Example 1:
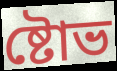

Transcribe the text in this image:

ষ্টোভ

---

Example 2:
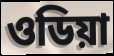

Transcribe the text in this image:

ওডিয়া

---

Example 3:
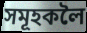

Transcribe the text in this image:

সমূহকলৈ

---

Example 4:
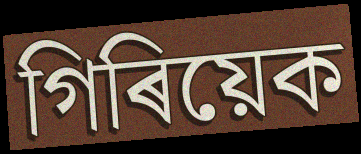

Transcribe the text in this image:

গিৰিয়েক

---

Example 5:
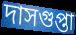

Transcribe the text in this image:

দাসগুপ্তা